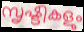
സൃഷ്ടികളും